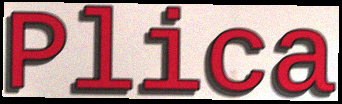
Plica